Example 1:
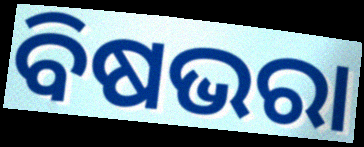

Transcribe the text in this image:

ବିଷଭରା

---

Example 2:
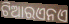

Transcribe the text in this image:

ଟିଆରଏନଏ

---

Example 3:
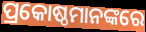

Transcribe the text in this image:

ପ୍ରକୋଷ୍ଠମାନଙ୍କରେ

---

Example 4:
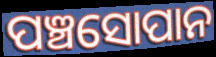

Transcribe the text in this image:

ପଞ୍ଚସୋପାନ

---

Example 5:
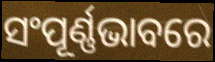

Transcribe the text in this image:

ସଂପୂର୍ଣ୍ଣଭାବରେ